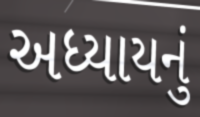
અધ્યાયનું